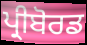
ਪ੍ਰੀਬੋਰਡ